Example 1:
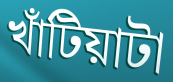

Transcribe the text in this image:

খাঁটিয়াটা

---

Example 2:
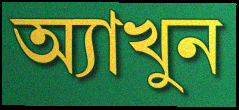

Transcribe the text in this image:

অ্যাখুন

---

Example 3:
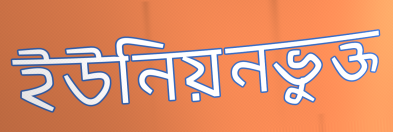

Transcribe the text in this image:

ইউনিয়নভুক্ত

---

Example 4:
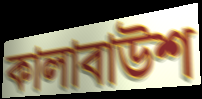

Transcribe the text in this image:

কালাবাউশ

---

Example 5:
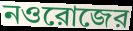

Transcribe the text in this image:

নওরোজের